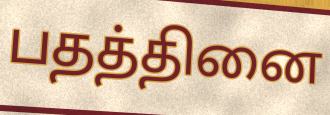
பதத்தினை